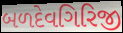
બળદેવગિરિજી